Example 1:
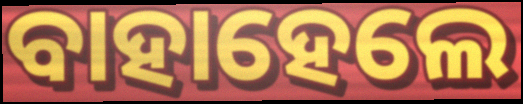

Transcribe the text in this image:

ବାହାହେଲେ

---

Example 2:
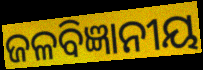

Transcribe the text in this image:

ଜଳବିଜ୍ଞାନୀୟ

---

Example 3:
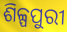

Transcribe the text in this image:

ଶିଳ୍ପପୁରୀ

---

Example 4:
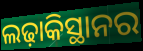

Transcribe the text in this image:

ଲଢ଼ାକିସ୍ଥାନର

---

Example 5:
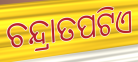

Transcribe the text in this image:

ଚନ୍ଦ୍ରାତପଟିଏ